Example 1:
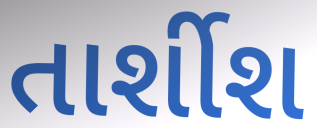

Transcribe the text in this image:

તાર્શીશ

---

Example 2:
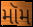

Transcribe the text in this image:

મૉમ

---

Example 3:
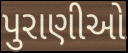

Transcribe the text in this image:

પુરાણીઓ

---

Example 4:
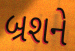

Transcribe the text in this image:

બ્રશને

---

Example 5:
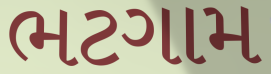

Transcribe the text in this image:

ભટગામ